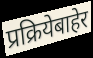
प्रक्रियेबाहेर